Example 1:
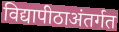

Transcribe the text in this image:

विद्यापीठाअंतर्गत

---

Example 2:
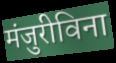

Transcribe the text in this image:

मंजुरीविना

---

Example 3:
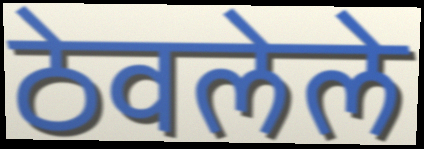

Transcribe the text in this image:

ठेवलेले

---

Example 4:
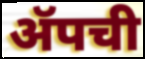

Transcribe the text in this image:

ॲपची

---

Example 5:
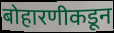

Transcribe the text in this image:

बोहारणीकडून